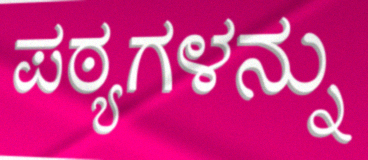
ಪಠ್ಯಗಳನ್ನು